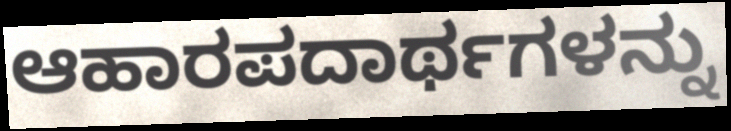
ಆಹಾರಪದಾರ್ಥಗಳನ್ನು